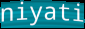
niyati